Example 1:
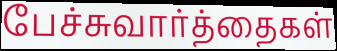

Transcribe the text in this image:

பேச்சுவார்த்தைகள்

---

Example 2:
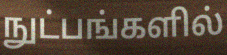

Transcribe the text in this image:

நுட்பங்களில்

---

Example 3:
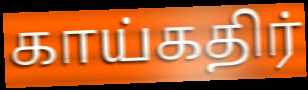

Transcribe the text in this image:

காய்கதிர்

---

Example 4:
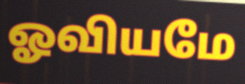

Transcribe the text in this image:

ஓவியமே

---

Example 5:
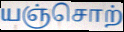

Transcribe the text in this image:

யஞ்சொற்